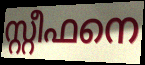
സ്റ്റീഫനെ